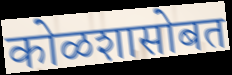
कोळशासोबत